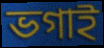
ভগাই